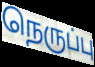
நெருப்பு